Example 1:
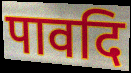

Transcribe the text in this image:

पावदि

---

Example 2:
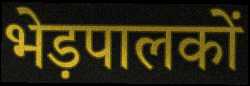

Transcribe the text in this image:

भेड़पालकों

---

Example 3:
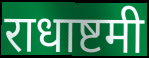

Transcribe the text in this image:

राधाष्टमी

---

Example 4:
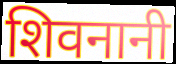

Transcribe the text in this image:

शिवनानी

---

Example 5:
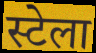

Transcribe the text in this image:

स्टेला